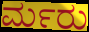
ರ್ಮರು